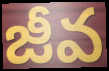
జీవ